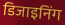
डिजाइनिंग